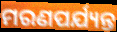
ମରଣପର୍ଯ୍ୟନ୍ତ